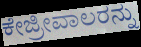
ಕೇಜ್ರೀವಾಲರನ್ನು